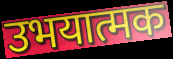
उभयात्मक